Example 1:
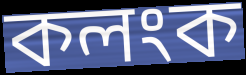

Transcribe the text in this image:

কলংক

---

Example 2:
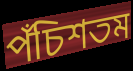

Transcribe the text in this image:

পঁচিশতম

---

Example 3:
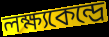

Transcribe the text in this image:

লক্ষ্যকেন্দ্রে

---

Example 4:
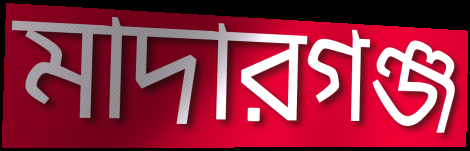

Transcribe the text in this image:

মাদারগঞ্জ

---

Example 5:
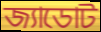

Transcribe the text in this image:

জ্যাডোট